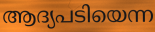
ആദ്യപടിയെന്ന